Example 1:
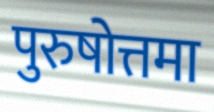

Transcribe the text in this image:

पुरुषोत्तमा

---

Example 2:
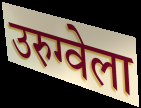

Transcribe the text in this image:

उरुग्वेला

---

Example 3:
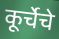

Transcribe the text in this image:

कूर्चेचे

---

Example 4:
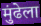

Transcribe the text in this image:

मुंढेला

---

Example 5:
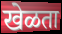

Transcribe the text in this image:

खेळता